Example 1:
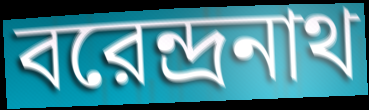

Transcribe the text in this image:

বরেন্দ্রনাথ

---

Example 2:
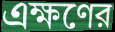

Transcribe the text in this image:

এক্ষণের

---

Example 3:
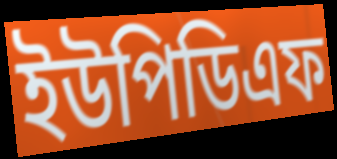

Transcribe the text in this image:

ইউপিডিএফ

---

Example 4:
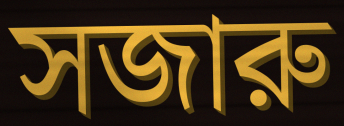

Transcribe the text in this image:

সজারু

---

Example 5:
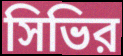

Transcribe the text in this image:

সিভির